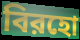
বিরহো